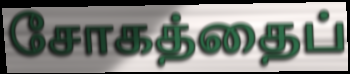
சோகத்தைப்